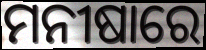
ମନୀଷାରେ